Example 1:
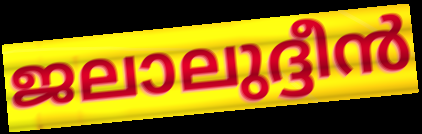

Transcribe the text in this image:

ജലാലുദ്ദീൻ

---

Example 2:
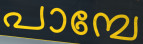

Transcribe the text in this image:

പാമ്പേ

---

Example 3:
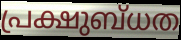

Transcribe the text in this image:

പ്രക്ഷുബ്ധത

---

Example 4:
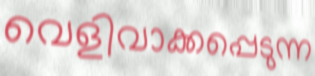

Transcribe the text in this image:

വെളിവാക്കപ്പെടുന്ന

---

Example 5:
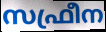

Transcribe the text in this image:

സഫ്രീന